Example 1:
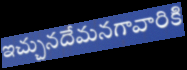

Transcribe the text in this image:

ఇచ్చునదేమనగావారికి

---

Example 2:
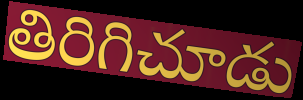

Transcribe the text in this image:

తిరిగిచూడు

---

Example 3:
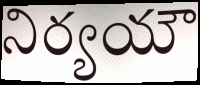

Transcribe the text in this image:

నిర్యయౌ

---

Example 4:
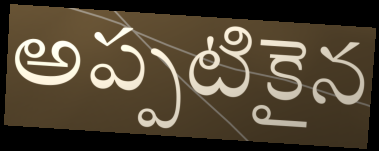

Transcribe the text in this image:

అప్పటికైన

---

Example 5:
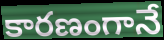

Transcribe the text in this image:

కారణంగానే